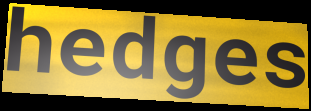
hedges